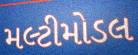
મલ્ટીમોડલ